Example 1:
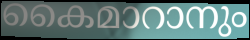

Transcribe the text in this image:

കൈമാറാനും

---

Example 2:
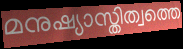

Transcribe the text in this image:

മനുഷ്യാസ്തിത്വത്തെ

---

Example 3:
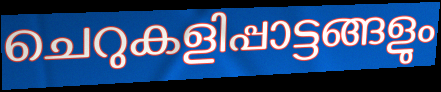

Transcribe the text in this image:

ചെറുകളിപ്പാട്ടങ്ങളും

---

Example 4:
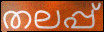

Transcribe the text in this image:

തലപ്പ്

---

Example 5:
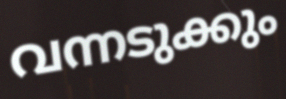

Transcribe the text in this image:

വന്നടുക്കും